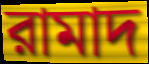
রামাদ